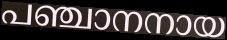
പഞ്ചാനനായ